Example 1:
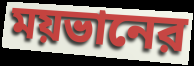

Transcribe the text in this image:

ময়ভানের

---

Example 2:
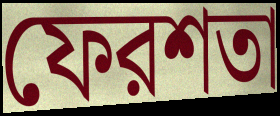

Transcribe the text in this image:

ফেরশতা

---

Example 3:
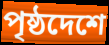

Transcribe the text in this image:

পৃষ্ঠদেশে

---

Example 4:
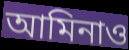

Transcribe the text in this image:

আমিনাও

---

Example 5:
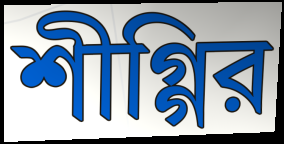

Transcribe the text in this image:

শীগ্গির